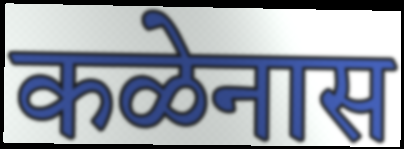
कळेनास